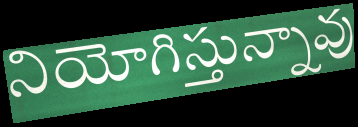
నియోగిస్తున్నావు